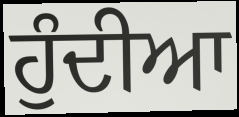
ਹੁੰਦੀਆ